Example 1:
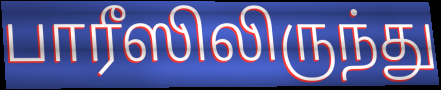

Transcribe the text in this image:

பாரீஸிலிருந்து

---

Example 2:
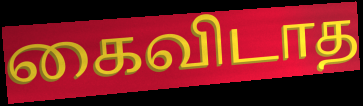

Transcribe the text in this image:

கைவிடாத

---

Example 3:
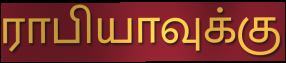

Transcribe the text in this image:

ராபியாவுக்கு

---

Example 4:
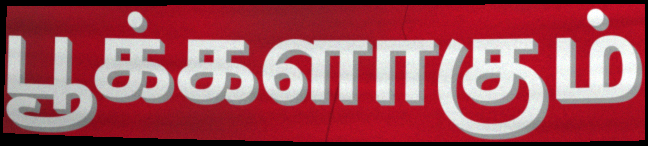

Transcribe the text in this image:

பூக்களாகும்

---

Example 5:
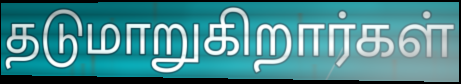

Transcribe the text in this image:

தடுமாறுகிறார்கள்